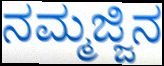
ನಮ್ಮಜ್ಜಿನ